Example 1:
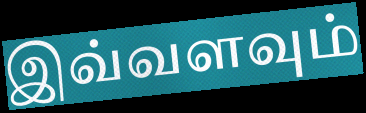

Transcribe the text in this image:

இவ்வளவும்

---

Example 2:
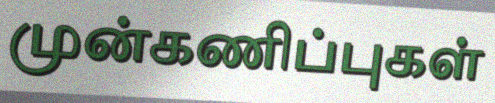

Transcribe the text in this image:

முன்கணிப்புகள்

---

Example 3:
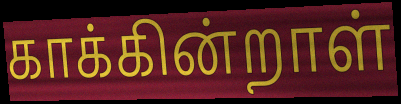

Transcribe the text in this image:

காக்கின்றாள்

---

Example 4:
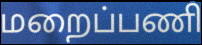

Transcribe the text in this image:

மறைப்பணி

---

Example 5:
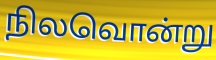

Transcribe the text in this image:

நிலவொன்று